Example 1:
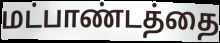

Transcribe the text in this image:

மட்பாண்டத்தை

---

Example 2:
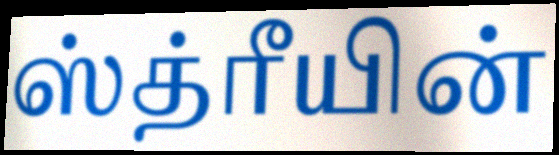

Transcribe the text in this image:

ஸ்த்ரீயின்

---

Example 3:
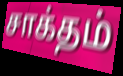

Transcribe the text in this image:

சாக்தம்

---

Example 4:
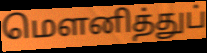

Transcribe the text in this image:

மெளனித்துப்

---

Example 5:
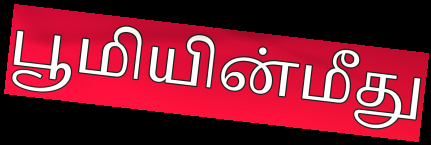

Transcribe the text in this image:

பூமியின்மீது